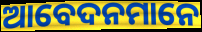
ଆବେଦନମାନେ